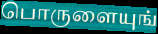
பொருளையுங்